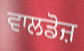
ਵਾਲਡੋਜ਼